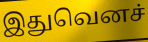
இதுவெனச்